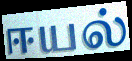
ஈயல்